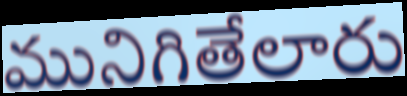
మునిగితేలారు